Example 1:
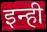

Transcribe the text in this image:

इन्ही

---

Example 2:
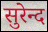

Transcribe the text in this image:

सुरेन्द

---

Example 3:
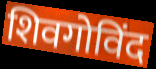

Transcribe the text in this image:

शिवगोविंद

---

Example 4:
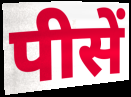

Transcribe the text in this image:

पीसें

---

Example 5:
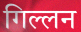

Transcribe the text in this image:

गिल्लन